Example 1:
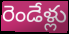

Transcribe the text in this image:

రెండేళ్లు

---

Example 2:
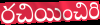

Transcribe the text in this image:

రచియించిరి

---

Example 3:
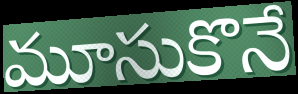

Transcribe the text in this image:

మూసుకొనే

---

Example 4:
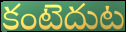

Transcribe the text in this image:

కంటెదుట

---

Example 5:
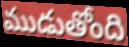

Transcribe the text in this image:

ముడుతోంది